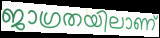
ജാഗ്രതയിലാണ്